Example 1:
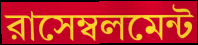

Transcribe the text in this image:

রাসেম্বলমেন্ট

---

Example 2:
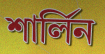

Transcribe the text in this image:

শার্লিন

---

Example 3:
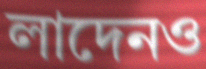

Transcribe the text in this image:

লাদেনও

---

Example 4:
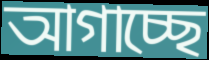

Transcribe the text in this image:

আগাচ্ছে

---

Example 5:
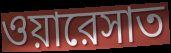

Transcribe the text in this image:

ওয়ারেসাত